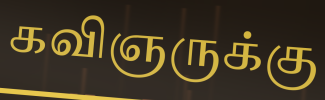
கவிஞருக்கு